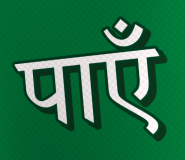
पाएँ